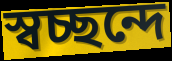
স্বচ্ছন্দে